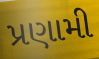
પ્રણામી